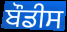
ਬੌਡੀਸ